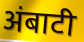
अंबाटी